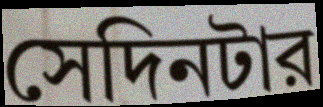
সেদিনটার